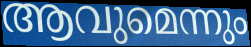
ആവുമെന്നും